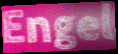
Engel